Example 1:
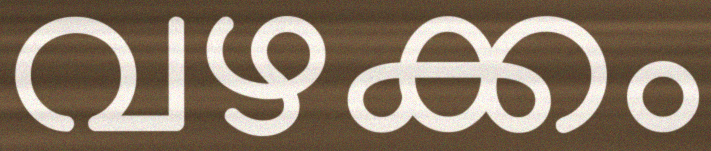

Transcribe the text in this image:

വഴക്കം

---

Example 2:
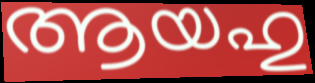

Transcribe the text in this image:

ആയഹു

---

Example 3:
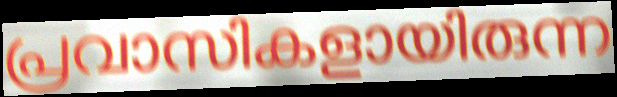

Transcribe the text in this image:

പ്രവാസികളായിരുന്ന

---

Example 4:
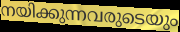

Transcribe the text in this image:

നയിക്കുന്നവരുടെയും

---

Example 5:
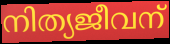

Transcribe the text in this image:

നിത്യജീവന്